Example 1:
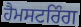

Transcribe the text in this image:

ਹੈਮਸਟਰਿੰਗ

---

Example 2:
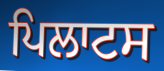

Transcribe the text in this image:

ਪਿਲਾਟਸ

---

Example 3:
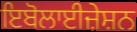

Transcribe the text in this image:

ਇਬੋਲਾਈਜ਼ੇਸ਼ਨ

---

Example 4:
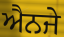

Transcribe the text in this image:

ਐਨਜੇ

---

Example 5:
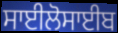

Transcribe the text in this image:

ਸਾਈਲੋਸਾਈਬ